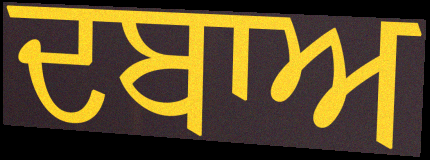
ਦਬਾਅ